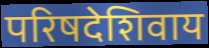
परिषदेशिवाय